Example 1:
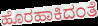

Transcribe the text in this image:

ಹೊರಹಾಕಿದಂತೆ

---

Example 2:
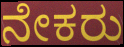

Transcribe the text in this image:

ನೇಕರು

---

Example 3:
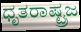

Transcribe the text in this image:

ಧೃತರಾಷ್ಟ್ರಜ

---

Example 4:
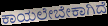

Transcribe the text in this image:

ಕಾಯಲೇಬೇಕಾಗಿದೆ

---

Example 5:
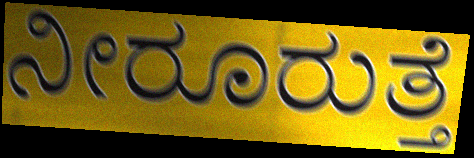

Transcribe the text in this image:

ನೀರೂರುತ್ತೆ